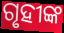
ଗୃହୀଙ୍କ